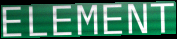
ELEMENT